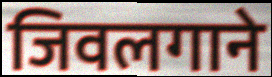
जिवलगाने